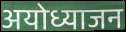
अयोध्याजन